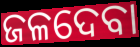
ଜଳଦେବା